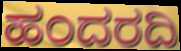
ಹಂದರದಿ